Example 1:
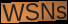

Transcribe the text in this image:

WSNs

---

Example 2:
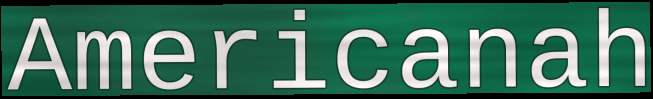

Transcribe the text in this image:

Americanah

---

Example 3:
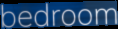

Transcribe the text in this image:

bedroom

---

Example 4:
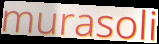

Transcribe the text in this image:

murasoli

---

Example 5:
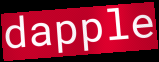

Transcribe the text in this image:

dapple